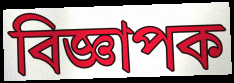
বিজ্ঞাপক